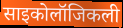
साइकोलॉजिकली